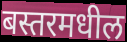
बस्तरमधील